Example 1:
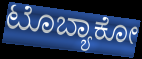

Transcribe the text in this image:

ಟೊಬ್ಯಾಕೋ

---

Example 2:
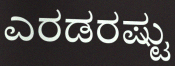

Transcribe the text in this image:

ಎರಡರಷ್ಟು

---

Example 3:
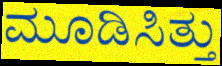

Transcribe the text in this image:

ಮೂಡಿಸಿತ್ತು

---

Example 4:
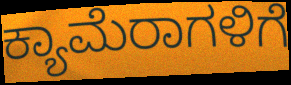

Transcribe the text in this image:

ಕ್ಯಾಮೆರಾಗಳಿಗೆ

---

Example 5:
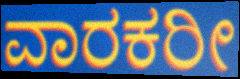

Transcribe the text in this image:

ವಾರಕರೀ